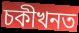
চকীখনত